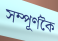
সম্পূৰ্ণকৈ